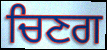
ਚਿਣਗ